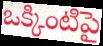
ఒక్కింటిపై